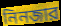
নিনজার